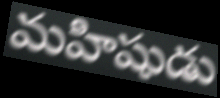
మహిషుడు